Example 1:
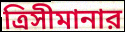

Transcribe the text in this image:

ত্রিসীমানার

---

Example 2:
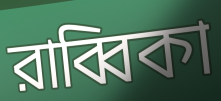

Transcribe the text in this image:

রাব্বিকা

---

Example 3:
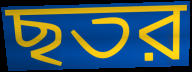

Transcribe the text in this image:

ছতর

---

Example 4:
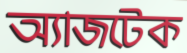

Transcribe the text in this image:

অ্যাজটেক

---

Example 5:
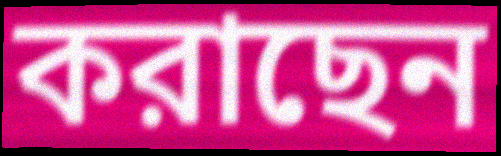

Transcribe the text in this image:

করাছেন